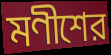
মণীশের